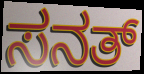
ಸನತ್